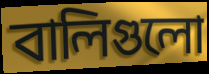
বালিগুলো